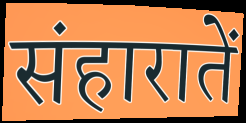
संहारातें